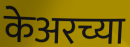
केअरच्या